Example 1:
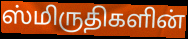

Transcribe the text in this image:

ஸ்மிருதிகளின்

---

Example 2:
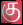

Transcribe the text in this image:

கு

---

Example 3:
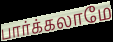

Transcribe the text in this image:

பார்க்கலாமே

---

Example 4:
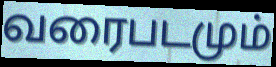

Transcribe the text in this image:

வரைபடமும்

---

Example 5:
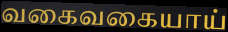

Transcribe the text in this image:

வகைவகையாய்